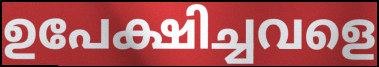
ഉപേക്ഷിച്ചവളെ